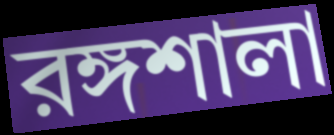
রঙ্গশালা